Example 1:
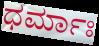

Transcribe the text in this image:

ಧರ್ಮಾಃ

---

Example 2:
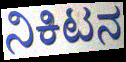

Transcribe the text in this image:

ನಿಕಿಟನ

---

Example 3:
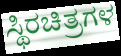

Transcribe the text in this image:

ಸ್ಥಿರಚಿತ್ರಗಳ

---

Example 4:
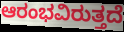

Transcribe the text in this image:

ಆರಂಭವಿರುತ್ತದೆ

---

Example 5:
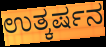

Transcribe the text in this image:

ಉತ್ಕರ್ಷನ